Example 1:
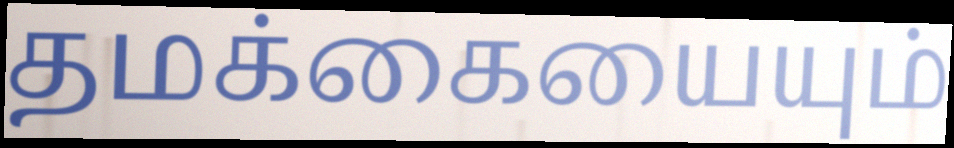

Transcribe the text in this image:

தமக்கையையும்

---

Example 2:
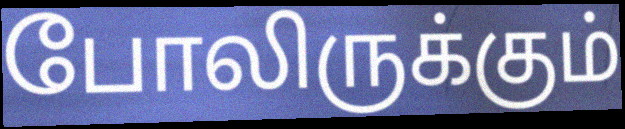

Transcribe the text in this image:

போலிருக்கும்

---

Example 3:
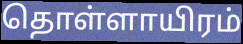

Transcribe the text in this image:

தொள்ளாயிரம்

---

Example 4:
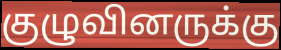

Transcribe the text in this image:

குழுவினருக்கு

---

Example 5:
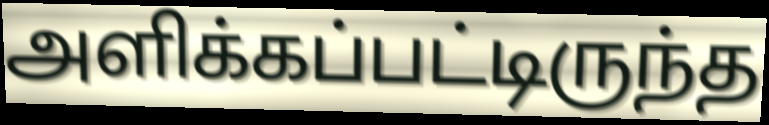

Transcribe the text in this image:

அளிக்கப்பட்டிருந்த